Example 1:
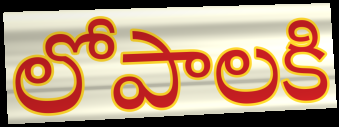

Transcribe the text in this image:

లోపాలకి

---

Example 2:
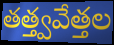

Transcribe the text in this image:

తత్త్వవేత్తల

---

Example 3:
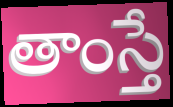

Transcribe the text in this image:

తాంస్తే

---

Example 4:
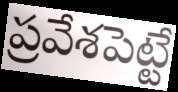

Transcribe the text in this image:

ప్రవేశపెట్టే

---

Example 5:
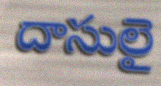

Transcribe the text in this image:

దాసులై